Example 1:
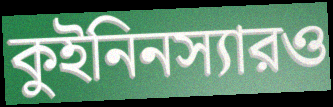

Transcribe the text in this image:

কুইনিনস্যারও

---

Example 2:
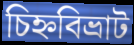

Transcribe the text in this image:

চিহ্নবিভ্রাট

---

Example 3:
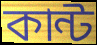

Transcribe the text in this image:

কান্ট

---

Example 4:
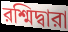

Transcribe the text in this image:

রশ্মিদ্বারা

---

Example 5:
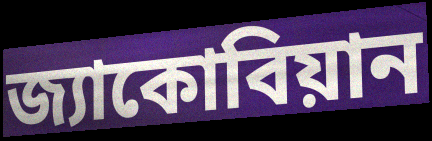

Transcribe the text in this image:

জ্যাকোবিয়ান